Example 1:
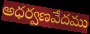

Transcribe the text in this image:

అధర్వణవేదము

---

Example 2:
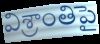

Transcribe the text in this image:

విశ్రాంతిపై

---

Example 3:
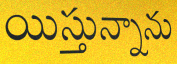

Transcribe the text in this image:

యిస్తున్నాను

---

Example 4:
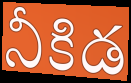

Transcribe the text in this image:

నీకిడ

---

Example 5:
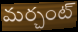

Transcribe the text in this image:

మర్చంట్